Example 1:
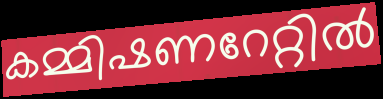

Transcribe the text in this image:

കമ്മിഷണറേറ്റിൽ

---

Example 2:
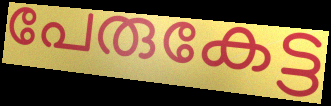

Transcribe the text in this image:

പേരുകേട്ട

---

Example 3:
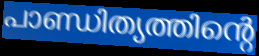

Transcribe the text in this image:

പാണ്ഡിത്യത്തിന്റെ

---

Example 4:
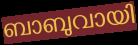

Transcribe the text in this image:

ബാബുവായി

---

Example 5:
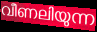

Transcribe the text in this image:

വീണലിയുന്ന